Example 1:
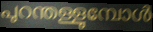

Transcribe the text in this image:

പുറന്തള്ളുമ്പോൾ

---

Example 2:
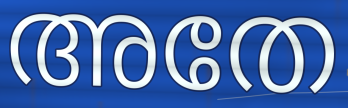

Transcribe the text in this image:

അതേ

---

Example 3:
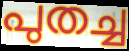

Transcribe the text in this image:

പുതച്ച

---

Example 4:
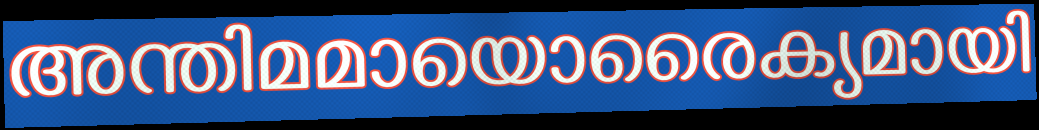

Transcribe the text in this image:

അന്തിമമായൊരൈക്യമായി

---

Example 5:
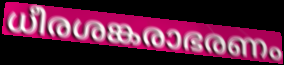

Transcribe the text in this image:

ധീരശങ്കരാഭരണം